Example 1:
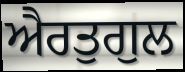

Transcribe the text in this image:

ਐਰਤੁਗੁਲ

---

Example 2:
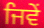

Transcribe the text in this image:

ਜਿਵੇੰ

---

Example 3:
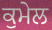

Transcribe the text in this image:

ਕੁਮੇਲ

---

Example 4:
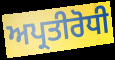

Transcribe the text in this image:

ਅਪ੍ਰਤੀਰੋਧੀ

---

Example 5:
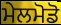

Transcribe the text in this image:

ਮੇਲਮੋਡੋ